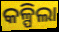
କଳ୍ପିଲା